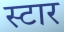
स्टार